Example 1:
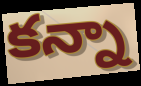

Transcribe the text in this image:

కన్నా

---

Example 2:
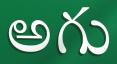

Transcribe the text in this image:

అగు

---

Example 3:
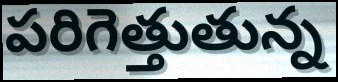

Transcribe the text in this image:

పరిగెత్తుతున్న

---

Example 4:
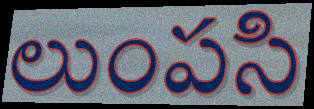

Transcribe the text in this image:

లుంపసి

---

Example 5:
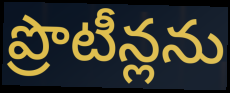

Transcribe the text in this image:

ప్రొటీన్లను